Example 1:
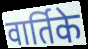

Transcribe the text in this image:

वार्तिके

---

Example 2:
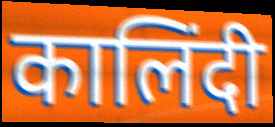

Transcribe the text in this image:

कालिंदी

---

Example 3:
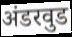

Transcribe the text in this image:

अंडरवुड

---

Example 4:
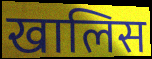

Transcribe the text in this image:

खालिस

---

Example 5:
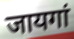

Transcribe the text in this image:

जायगां